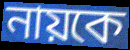
নায়কে